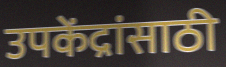
उपकेंद्रांसाठी